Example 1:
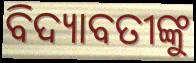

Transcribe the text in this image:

ବିଦ୍ୟାବତୀଙ୍କୁ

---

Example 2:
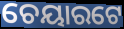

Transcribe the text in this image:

ଚେୟାରଟେ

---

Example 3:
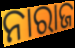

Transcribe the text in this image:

ନାରାଜ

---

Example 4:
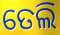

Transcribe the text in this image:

ତେଲି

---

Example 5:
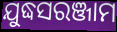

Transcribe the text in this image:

ଯୁଦ୍ଧସରଞ୍ଜାମ